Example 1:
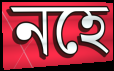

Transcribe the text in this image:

নহে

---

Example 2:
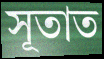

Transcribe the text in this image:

সূতাত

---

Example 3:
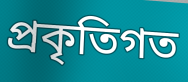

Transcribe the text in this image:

প্ৰকৃতিগত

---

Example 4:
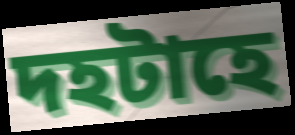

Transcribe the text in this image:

দহটাহে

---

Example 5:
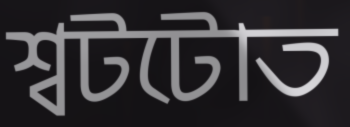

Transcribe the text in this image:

শ্বটটোত